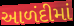
આળંદીમાં